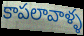
కాపలావాళ్ళ